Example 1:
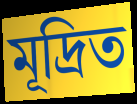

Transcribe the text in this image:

মূদ্রিত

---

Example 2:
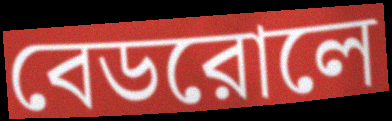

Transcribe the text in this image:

বেডরোলে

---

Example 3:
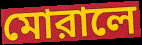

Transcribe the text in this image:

মোরালে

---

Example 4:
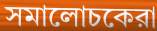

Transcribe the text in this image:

সমালোচকেরা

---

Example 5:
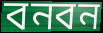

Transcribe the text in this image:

বনবন